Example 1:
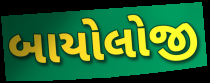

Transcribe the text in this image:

બાયોલોજી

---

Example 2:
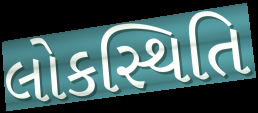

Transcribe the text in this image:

લોકસ્થિતિ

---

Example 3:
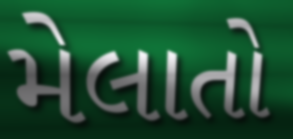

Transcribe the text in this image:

મેલાતો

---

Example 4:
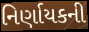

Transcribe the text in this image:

નિર્ણાયકની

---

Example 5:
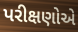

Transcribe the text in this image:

પરીક્ષણોએ